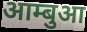
आम्बुआ